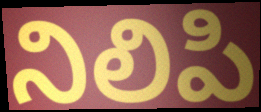
నిలిపి